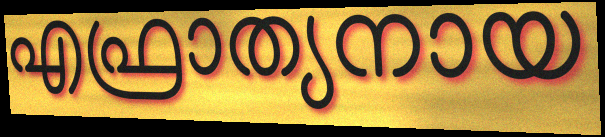
എഫ്രാത്യനായ